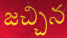
జచ్చిన